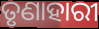
ତୃଣାହାରୀ